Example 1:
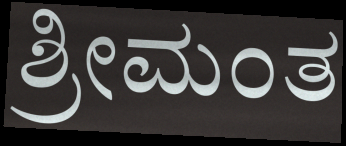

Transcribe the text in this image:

ಶ್ರೀಮಂತ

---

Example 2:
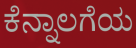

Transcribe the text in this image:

ಕೆನ್ನಾಲಗೆಯ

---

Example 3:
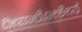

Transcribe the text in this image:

ದೀಪಾಲೋಕೇನ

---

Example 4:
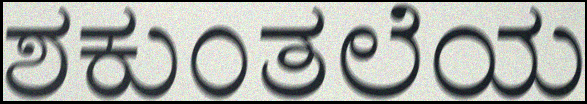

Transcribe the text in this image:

ಶಕುಂತಲೆಯ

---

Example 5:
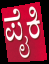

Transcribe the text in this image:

ಪೈಕಿ